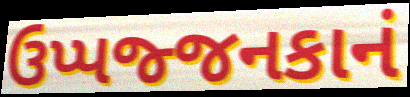
ઉપ્પજ્જનકાનં